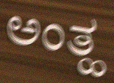
ಅಂತ್ಹ